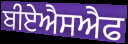
ਬੀਏਐਸਐਫ